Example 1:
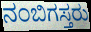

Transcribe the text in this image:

ನಂಬಿಗಸ್ತರು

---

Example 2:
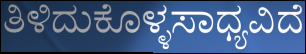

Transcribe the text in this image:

ತಿಳಿದುಕೊಳ್ಳಸಾಧ್ಯವಿದೆ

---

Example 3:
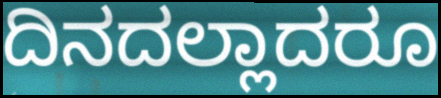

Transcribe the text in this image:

ದಿನದಲ್ಲಾದರೂ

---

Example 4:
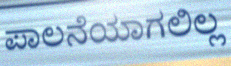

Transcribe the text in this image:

ಪಾಲನೆಯಾಗಲಿಲ್ಲ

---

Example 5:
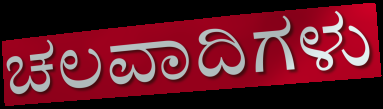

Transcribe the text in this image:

ಚಲವಾದಿಗಳು